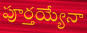
పూర్తయ్యేనా